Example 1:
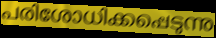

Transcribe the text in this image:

പരിശോധിക്കപ്പെടുന്നു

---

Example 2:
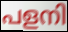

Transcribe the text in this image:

പളനി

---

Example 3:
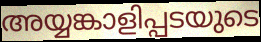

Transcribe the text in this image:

അയ്യങ്കാളിപ്പടയുടെ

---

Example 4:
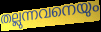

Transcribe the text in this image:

തല്ലുന്നവനെയും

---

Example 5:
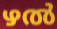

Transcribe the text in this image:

ഴൽ